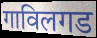
गाविलगड